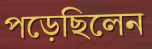
পড়েছিলেন